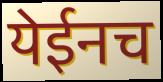
येईनच